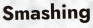
Smashing